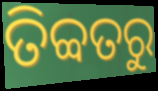
ତିବ୍ବତରୁ